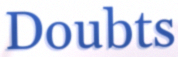
Doubts